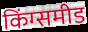
किंग्समीड